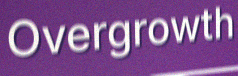
Overgrowth